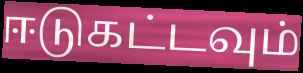
ஈடுகட்டவும்